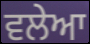
ਵਲੇਆ